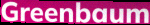
Greenbaum